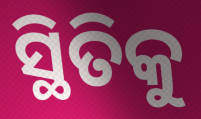
ସ୍ଥିତିକୁ